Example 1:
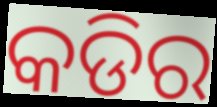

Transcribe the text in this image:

କଡିର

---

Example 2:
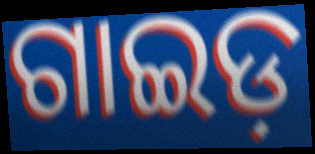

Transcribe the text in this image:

ଗାଇଡ଼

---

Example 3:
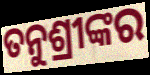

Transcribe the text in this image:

ତନୁଶ୍ରୀଙ୍କର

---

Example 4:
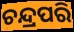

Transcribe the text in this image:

ଚନ୍ଦ୍ରପରି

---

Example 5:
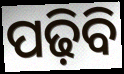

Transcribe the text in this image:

ପଢ଼ିବି